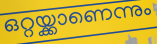
ഒറ്റയ്ക്കാണെന്നും